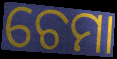
ଚେମା